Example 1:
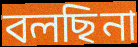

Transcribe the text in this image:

বলছিনা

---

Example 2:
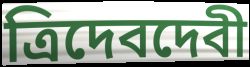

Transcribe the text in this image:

ত্রিদেবদেবী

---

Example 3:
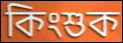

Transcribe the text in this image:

কিংশুক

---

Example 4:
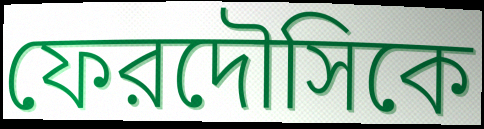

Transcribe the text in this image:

ফেরদৌসিকে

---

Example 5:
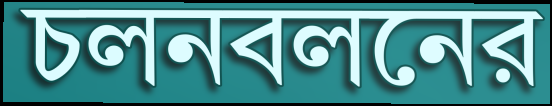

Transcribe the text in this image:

চলনবলনের